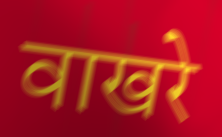
वाखरे